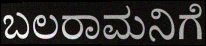
ಬಲರಾಮನಿಗೆ